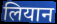
लियान